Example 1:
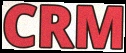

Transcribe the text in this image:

CRM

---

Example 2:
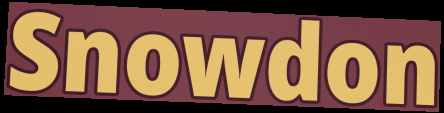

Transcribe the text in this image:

Snowdon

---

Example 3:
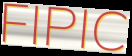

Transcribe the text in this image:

FIPIC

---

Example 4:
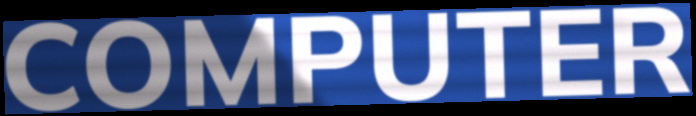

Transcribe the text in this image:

COMPUTER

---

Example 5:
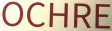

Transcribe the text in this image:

OCHRE